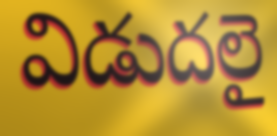
విడుదలై